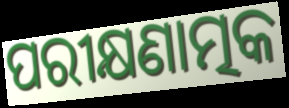
ପରୀକ୍ଷଣାତ୍ମକ